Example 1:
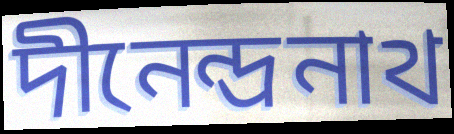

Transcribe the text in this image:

দীনেন্দ্রনাথ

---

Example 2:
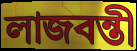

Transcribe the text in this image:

লাজবন্তী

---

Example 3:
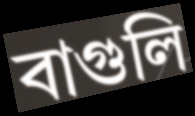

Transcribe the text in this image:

বাগুলি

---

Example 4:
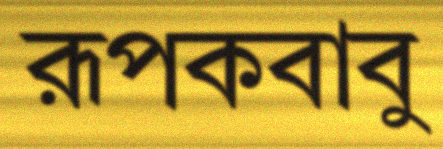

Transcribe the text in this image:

রূপকবাবু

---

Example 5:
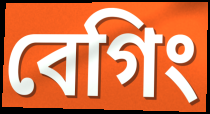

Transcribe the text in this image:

বেগিং